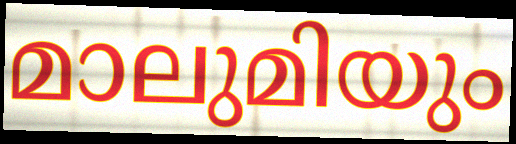
മാലുമിയും